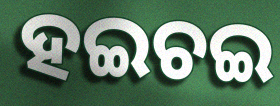
ହଇଚଇ